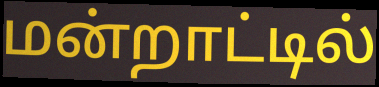
மன்றாட்டில்